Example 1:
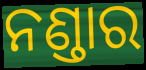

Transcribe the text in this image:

ନଣ୍ଡାର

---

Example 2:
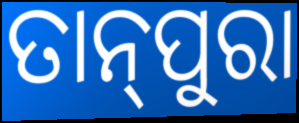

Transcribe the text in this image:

ତାନ୍‌ପୁରା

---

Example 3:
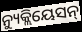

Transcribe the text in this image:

ନ୍ୟୁକ୍ଲିୟେସନ୍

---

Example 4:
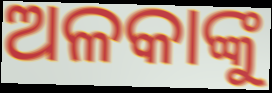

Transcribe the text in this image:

ଅଳକାଙ୍କୁ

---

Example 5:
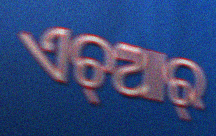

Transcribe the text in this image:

ଏଚ୍ଆର୍